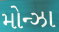
મોન્ઝા